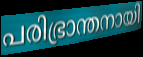
പരിഭ്രാന്തനായി